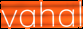
vahal